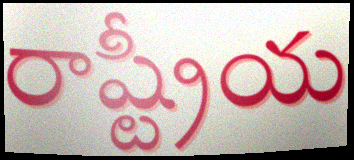
రాష్ట్రీయ